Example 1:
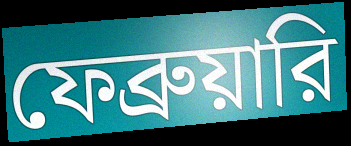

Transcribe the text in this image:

ফেব্রুয়ারি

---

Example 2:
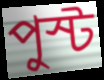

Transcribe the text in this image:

পুস্ট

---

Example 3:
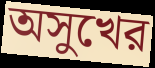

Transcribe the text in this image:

অসুখের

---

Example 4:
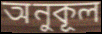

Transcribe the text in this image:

অনুকূল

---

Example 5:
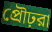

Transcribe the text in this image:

প্রৌঢ়রা